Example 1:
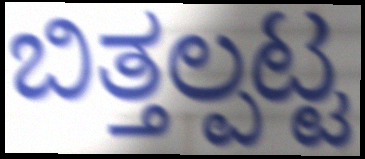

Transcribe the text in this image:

ಬಿತ್ತಲ್ಪಟ್ಟ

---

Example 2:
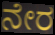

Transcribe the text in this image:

ನೇರ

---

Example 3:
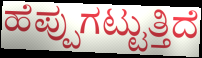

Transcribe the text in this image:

ಹೆಪ್ಪುಗಟ್ಟುತ್ತಿದೆ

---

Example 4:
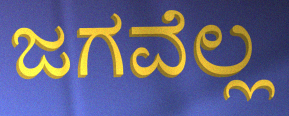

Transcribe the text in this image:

ಜಗವೆಲ್ಲ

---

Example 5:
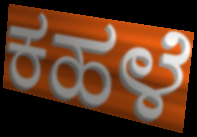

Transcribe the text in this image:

ಕಹಳೆ